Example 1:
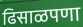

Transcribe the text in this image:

ढिसाळपणा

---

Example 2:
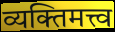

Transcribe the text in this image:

व्यक्तिमत्त्व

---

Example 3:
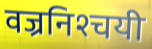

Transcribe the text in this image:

वज्रनिश्चयी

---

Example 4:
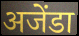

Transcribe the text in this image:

अजेंडा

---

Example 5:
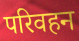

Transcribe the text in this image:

परिवहन